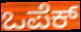
ಒಪೆಕ್